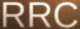
RRC